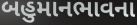
બહુમાનભાવના